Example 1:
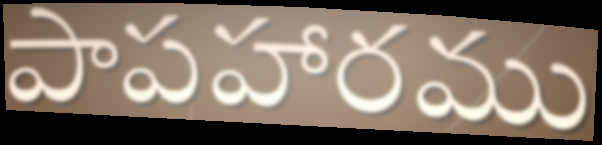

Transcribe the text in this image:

పాపహారము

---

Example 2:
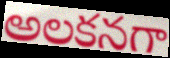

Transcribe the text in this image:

అలకనగా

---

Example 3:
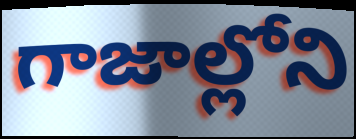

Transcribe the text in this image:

గాజాల్లోని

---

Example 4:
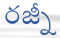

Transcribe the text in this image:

రజ్నీ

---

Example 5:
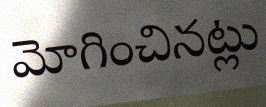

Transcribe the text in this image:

మోగించినట్లు